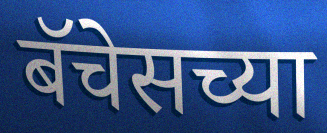
बॅचेसच्या